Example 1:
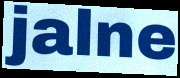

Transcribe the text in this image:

jalne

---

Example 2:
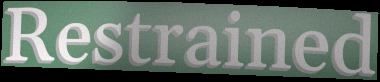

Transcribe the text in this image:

Restrained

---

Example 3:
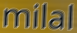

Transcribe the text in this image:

milal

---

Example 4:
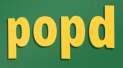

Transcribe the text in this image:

popd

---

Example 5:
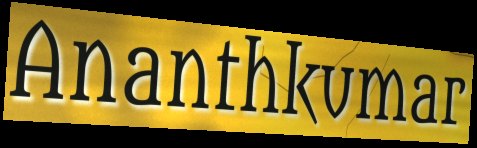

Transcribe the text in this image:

Ananthkumar